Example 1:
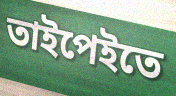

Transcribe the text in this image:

তাইপেইতে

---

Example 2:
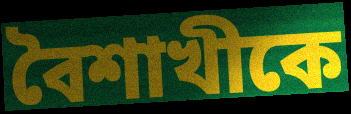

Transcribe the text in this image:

বৈশাখীকে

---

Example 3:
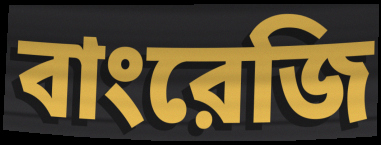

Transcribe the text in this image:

বাংরেজি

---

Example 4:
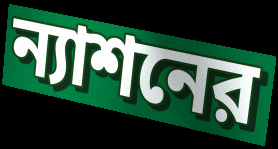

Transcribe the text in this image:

ন্যাশনের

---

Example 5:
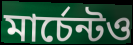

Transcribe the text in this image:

মার্চেন্টও